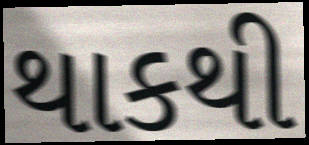
થાકથી